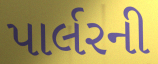
પાર્લરની